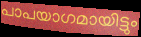
പാപയാഗമായിട്ടും